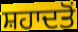
ਸ਼ਹਾਦਤੋਂ